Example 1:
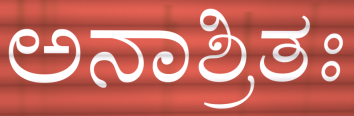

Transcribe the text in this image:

ಅನಾಶ್ರಿತಃ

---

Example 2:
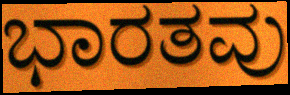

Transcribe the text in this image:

ಭಾರತವು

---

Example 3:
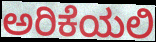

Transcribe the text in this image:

ಅರಿಕೆಯಲಿ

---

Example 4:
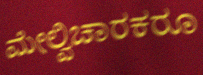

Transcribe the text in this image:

ಮೇಲ್ವಿಚಾರಕರೂ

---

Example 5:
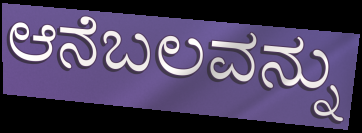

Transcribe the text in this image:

ಆನೆಬಲವನ್ನು